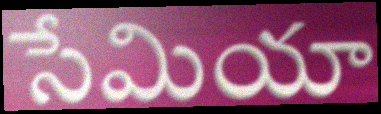
సేమియా